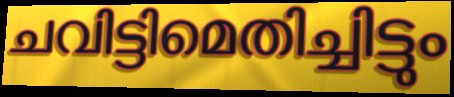
ചവിട്ടിമെതിച്ചിട്ടും